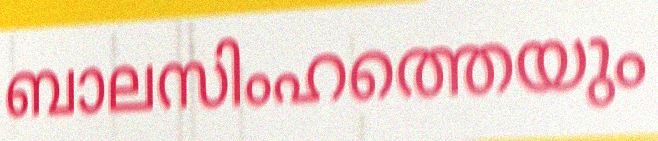
ബാലസിംഹത്തെയും